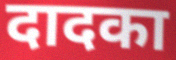
दादका